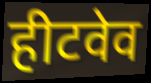
हीटवेव